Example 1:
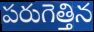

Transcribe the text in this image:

పరుగెత్తిన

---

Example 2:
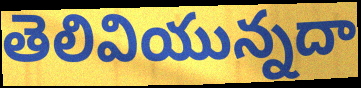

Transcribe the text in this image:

తెలివియున్నదా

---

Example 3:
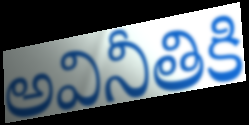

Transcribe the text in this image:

అవినీతికి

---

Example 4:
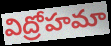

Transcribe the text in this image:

విద్రోహమా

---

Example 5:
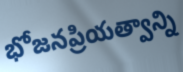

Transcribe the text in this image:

భోజనప్రియత్వాన్ని